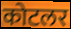
कोटलर